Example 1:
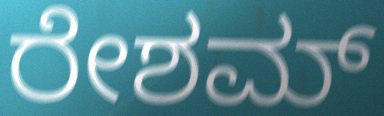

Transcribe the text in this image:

ರೇಶಮ್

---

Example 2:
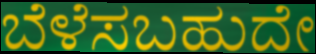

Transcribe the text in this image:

ಬೆಳೆಸಬಹುದೇ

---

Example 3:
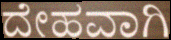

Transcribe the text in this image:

ದೇಹವಾಗಿ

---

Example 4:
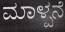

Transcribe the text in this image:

ಮಾಳ್ಪನೆ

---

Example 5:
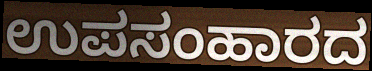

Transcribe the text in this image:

ಉಪಸಂಹಾರದ